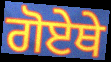
ਗੋਏਥੇ